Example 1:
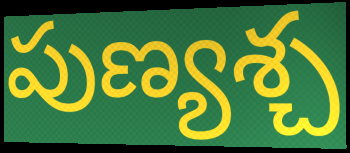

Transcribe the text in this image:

పుణ్యశ్చ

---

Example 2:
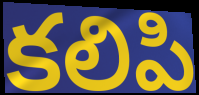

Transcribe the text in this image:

కలిపి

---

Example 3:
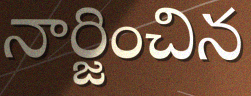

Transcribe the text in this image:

నార్జించిన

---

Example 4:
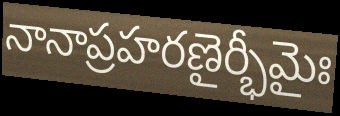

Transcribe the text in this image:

నానాప్రహరణైర్భీమైః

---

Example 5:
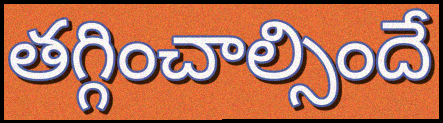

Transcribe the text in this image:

తగ్గించాల్సిందే